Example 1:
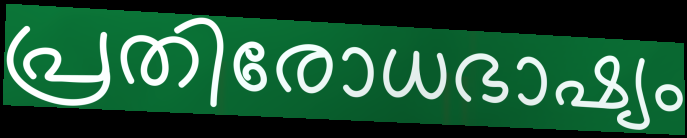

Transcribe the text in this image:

പ്രതിരോധഭാഷ്യം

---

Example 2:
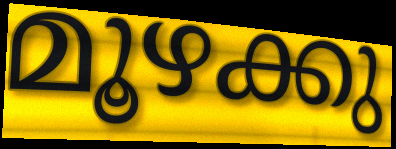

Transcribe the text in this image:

മൂഴക്കു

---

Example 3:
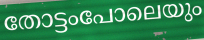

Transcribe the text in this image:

തോട്ടംപോലെയും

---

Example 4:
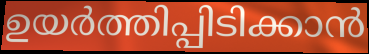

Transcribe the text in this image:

ഉയർത്തിപ്പിടിക്കാൻ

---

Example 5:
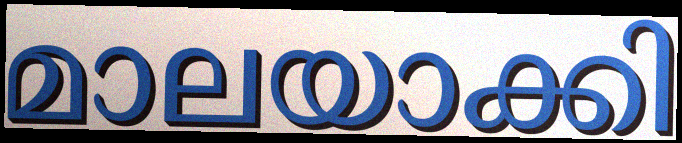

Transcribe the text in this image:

മാലയാക്കി